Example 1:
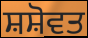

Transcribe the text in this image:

ਸ਼ਸ਼ੋਵਤ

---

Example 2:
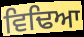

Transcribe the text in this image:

ਵਿਢਿਆ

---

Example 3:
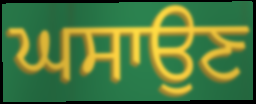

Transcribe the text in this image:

ਘਸਾਉਣ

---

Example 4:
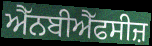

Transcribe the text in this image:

ਐੱਨਬੀਐੱਫਸੀਜ਼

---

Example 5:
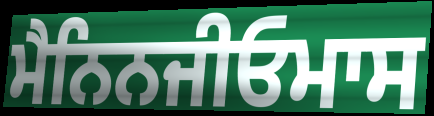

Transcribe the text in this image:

ਮੈਨਿਨਜੀਓਮਾਸ